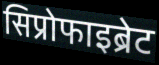
सिप्रोफाइब्रेट